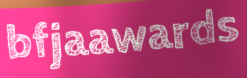
bfjaawards